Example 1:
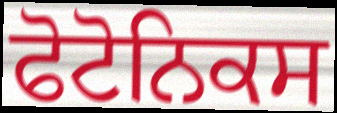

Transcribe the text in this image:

ਫੋਟੋਨਿਕਸ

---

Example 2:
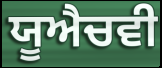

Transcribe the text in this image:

ਯੂਐਚਵੀ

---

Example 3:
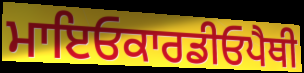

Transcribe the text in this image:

ਮਾਇਓਕਾਰਡੀਓਪੈਥੀ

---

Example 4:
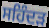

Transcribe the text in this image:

ਸਹਿੰਦੜ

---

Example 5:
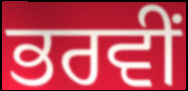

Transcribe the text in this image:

ਭਰਵੀਂ